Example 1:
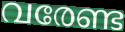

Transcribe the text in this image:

വരേണ്ട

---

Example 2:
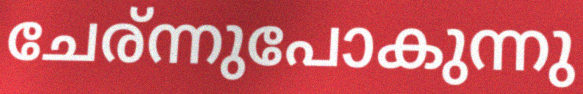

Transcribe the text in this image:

ചേര്ന്നുപോകുന്നു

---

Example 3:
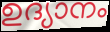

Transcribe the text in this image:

ഉദ്യാനം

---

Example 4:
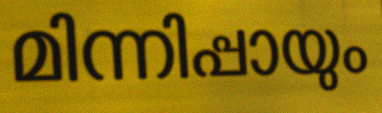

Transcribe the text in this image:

മിന്നിപ്പായും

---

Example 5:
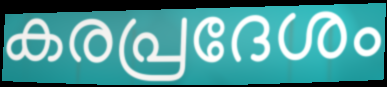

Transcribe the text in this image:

കരപ്രദേശം